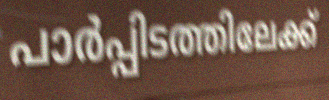
പാർപ്പിടത്തിലേക്ക്